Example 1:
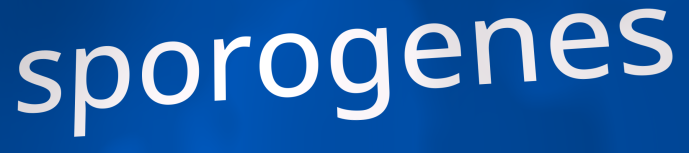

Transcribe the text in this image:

sporogenes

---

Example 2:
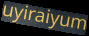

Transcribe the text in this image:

uyiraiyum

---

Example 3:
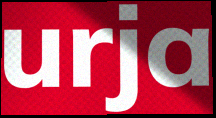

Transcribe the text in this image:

urja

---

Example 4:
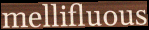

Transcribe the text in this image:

mellifluous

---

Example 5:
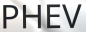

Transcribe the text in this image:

PHEV